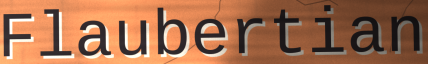
Flaubertian